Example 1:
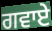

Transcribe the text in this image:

ਗਵਾਏ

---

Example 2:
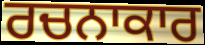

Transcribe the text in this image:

ਰਚਨਾਕਾਰ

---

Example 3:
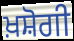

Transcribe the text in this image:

ਖ਼ਸ਼ੋਗੀ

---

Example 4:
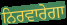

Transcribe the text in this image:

ਨਿਰਵਾਰੇਗਾ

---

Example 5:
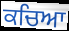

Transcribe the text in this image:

ਕਚਿਆ